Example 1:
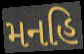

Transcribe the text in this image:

મનહિ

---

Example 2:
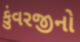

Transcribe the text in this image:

કુંવરજીનો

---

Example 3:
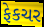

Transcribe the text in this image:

ફેકચર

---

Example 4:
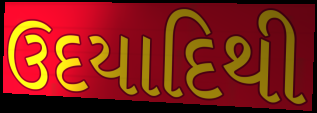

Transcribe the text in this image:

ઉદયાદિથી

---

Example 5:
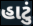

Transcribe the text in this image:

હાટું